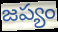
జప్యం